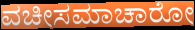
ವಚೀಸಮಾಚಾರೋ